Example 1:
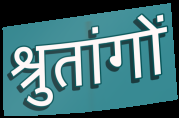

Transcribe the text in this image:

श्रुतांगों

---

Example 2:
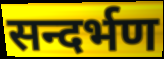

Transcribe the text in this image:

सन्दर्भण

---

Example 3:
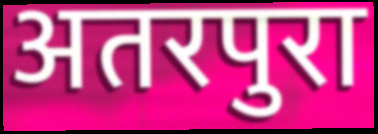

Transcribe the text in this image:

अतरपुरा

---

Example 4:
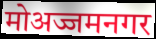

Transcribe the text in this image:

मोअज्जमनगर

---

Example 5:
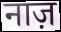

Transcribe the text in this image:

नाज़